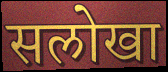
सलोखा